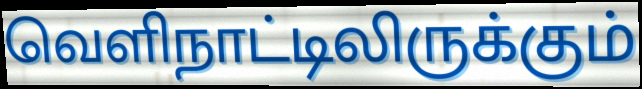
வெளிநாட்டிலிருக்கும்